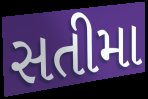
સતીમા